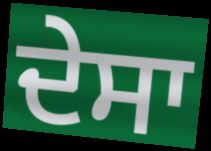
ਦੇਸਾ